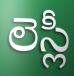
లెస్లీ